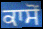
ਕਾਸੋਂ